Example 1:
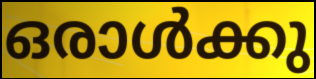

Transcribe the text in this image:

ഒരാൾക്കു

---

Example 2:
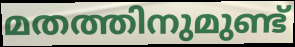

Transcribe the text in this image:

മതത്തിനുമുണ്ട്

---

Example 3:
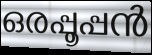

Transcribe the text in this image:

ഒരപ്പൂപ്പൻ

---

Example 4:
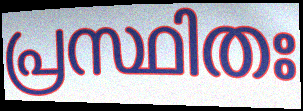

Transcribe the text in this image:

പ്രസ്ഥിതഃ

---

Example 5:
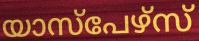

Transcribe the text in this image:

യാസ്പേഴ്സ്